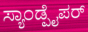
ಸ್ಯಾಂಡ್ಪೈಪರ್